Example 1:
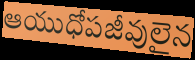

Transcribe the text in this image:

ఆయుధోపజీవులైన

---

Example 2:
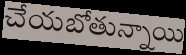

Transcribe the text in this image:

చేయబోతున్నాయి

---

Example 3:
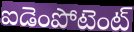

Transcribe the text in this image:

ఐడెంపోటెంట్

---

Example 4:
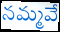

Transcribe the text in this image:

నమ్మవే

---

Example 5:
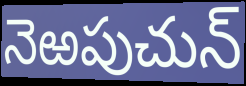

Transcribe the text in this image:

నెఱపుచున్